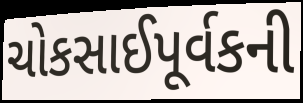
ચોકસાઈપૂર્વકની